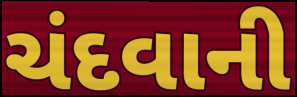
ચંદવાની